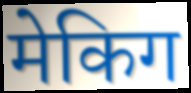
मेकिग